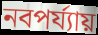
নবপর্য্যায়